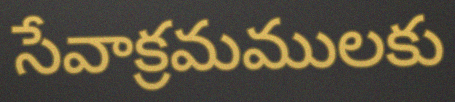
సేవాక్రమములకు